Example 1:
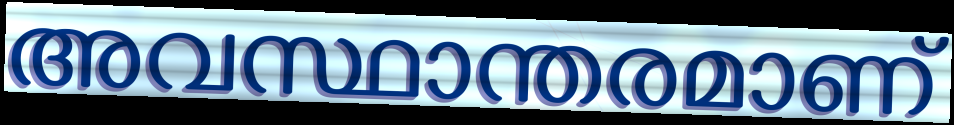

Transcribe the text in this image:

അവസ്ഥാന്തരമാണ്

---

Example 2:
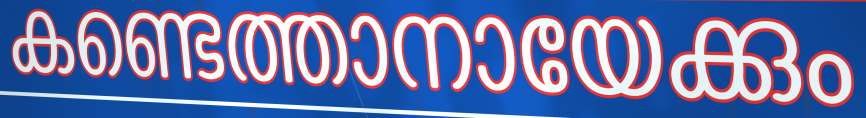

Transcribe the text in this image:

കണ്ടെത്താനായേക്കും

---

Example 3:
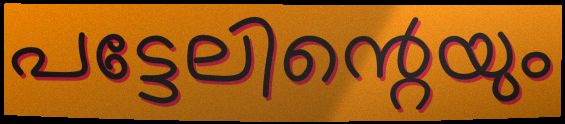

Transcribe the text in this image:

പട്ടേലിന്റെയും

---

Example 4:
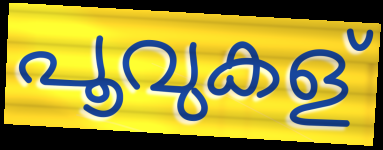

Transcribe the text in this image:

പൂവുകള്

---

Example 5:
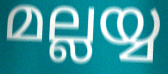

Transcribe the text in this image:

മല്ലയ്യ